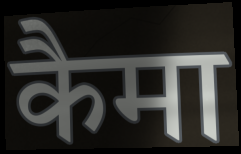
कैमा